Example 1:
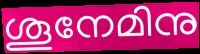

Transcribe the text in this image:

ശൂനേമിനു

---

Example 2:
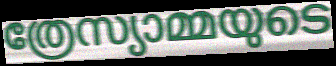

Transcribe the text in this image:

ത്രേസ്യാമ്മയുടെ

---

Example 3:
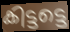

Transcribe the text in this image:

കിട്ടട്ടെ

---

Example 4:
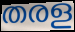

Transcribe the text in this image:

തരള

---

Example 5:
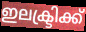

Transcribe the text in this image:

ഇലക്ട്രിക്ക്